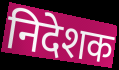
निदेशक